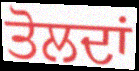
ਤੋਲਦਾਂ